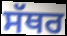
ਸੱਥਰ